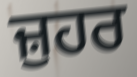
ਜ਼ੁਹਰ